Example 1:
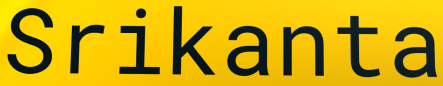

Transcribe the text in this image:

Srikanta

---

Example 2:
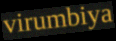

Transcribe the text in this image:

virumbiya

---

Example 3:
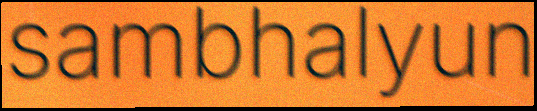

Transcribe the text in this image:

sambhalyun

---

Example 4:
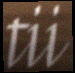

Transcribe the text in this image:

tii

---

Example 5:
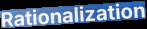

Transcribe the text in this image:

Rationalization